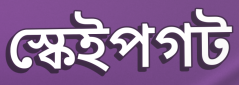
স্কেইপগট